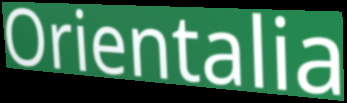
Orientalia